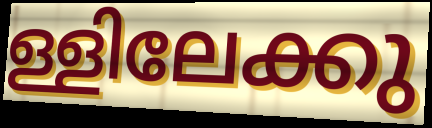
ള്ളിലേക്കു